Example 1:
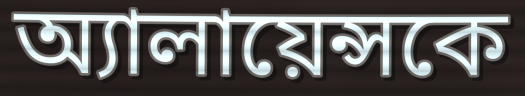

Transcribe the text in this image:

অ্যালায়েন্সকে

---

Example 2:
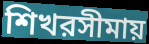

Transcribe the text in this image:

শিখরসীমায়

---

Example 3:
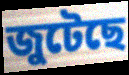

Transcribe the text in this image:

জুটেছে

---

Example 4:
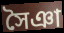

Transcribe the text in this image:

সৈঞা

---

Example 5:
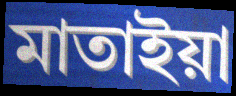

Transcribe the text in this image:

মাতাইয়া